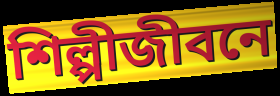
শিল্পীজীবনে